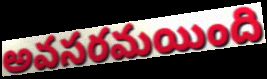
అవసరమయింది